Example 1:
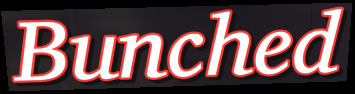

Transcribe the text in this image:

Bunched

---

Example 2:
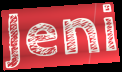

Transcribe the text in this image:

Jeni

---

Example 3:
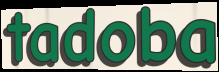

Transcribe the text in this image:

tadoba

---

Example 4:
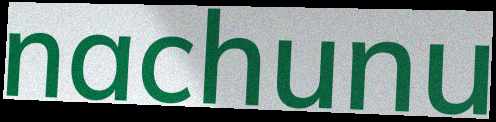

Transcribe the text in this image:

nachunu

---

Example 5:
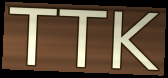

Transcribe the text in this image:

TTK